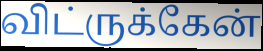
விட்ருக்கேன்